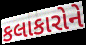
કલાકારોને